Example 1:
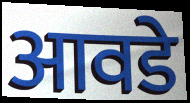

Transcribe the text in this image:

आवडे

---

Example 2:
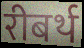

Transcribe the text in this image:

रीबर्थ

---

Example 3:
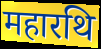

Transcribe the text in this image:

महारथि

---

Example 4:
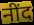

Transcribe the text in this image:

नींद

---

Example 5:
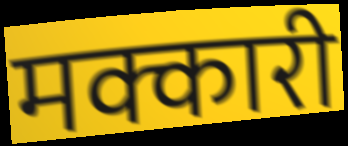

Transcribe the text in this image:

मक्कारी